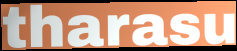
tharasu